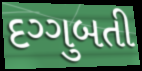
દગ્ગુબતી